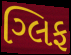
ગ્લિફ